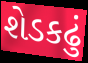
શેડકઢું